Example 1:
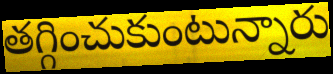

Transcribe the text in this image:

తగ్గించుకుంటున్నారు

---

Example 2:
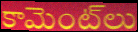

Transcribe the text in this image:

కామెంట్‌లు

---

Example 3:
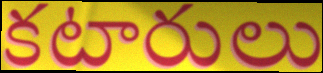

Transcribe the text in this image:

కటారులు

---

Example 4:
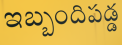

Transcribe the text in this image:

ఇబ్బందిపడ్డ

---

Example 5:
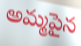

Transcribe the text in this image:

అమ్మపైన